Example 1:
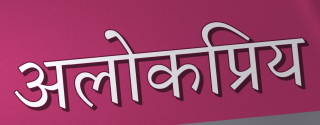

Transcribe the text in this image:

अलोकप्रिय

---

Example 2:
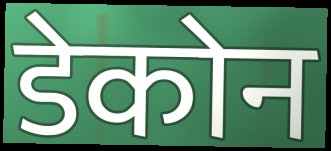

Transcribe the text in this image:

डेकोन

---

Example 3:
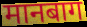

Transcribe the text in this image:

मानबाग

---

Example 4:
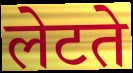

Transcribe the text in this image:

लेटते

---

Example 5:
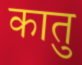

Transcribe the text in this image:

कातु